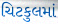
ચિટકુલમાં